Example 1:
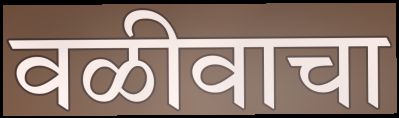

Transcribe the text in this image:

वळीवाचा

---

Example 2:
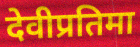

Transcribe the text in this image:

देवीप्रतिमा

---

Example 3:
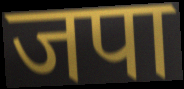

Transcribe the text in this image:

जपा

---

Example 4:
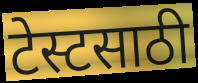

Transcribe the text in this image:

टेस्टसाठी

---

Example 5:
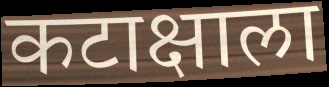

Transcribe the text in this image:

कटाक्षाला